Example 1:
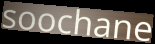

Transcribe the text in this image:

soochane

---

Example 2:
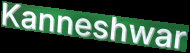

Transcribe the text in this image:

Kanneshwar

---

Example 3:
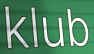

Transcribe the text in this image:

klub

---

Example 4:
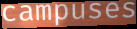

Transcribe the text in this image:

campuses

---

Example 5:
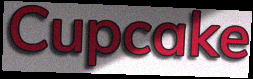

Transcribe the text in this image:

Cupcake